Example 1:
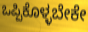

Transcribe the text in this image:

ಒಪ್ಪಿಕೊಳ್ಳಬೇಕೇ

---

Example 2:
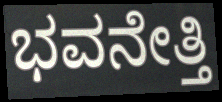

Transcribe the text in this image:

ಭವನೇತ್ತಿ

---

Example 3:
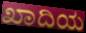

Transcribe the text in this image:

ಖಾದಿಯ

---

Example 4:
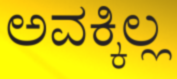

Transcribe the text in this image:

ಅವಕ್ಕಿಲ್ಲ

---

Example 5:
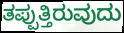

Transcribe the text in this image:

ತಪ್ಪುತ್ತಿರುವುದು